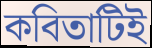
কবিতাটিই